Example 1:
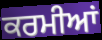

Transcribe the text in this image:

ਕਰਮੀਆਂ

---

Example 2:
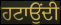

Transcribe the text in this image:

ਹਟਾਉਂਦੀ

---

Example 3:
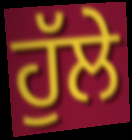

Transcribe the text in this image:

ਹੁੱਲੇ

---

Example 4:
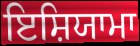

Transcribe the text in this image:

ਇਸ਼ਿਯਾਮਾ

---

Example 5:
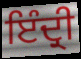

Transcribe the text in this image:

ਇੰਦ੍ਰੀ